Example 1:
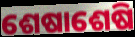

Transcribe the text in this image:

ଶେଷାଶେଷି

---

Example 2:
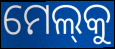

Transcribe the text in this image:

ମେଲ୍‌କୁ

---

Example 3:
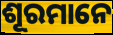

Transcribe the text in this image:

ଶୂରମାନେ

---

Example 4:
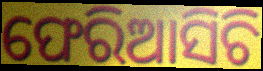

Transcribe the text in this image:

ଫେରିଆସିଚି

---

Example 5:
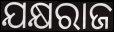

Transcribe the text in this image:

ଯକ୍ଷରାଜ